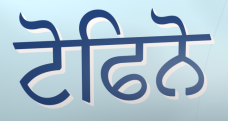
ਟੋਫਿਨੋ